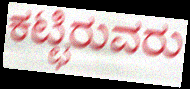
ಕಟ್ಟಿರುವರು